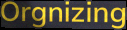
Orgnizing